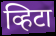
व्हिटा